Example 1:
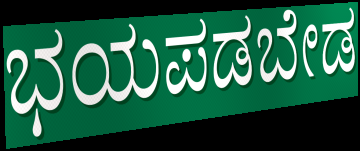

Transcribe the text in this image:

ಭಯಪಡಬೇಡ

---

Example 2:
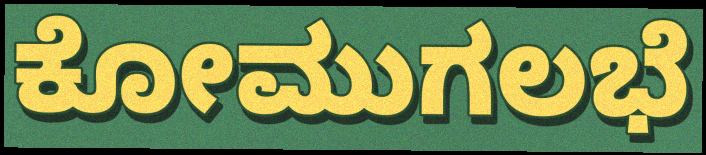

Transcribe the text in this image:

ಕೋಮುಗಲಭೆ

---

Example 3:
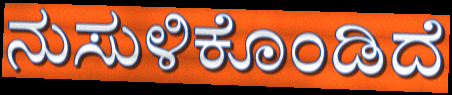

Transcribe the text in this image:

ನುಸುಳಿಕೊಂಡಿದೆ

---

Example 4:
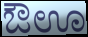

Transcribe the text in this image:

ಔಊ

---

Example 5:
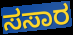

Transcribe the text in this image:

ಸಸಾರ